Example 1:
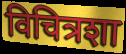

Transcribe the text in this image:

विचित्रशा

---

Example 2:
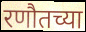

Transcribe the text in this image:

रणौतच्या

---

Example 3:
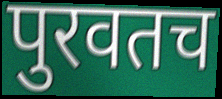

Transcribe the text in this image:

पुरवतच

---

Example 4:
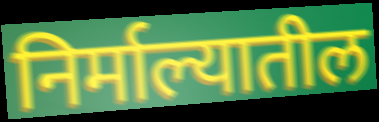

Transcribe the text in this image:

निर्माल्यातील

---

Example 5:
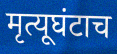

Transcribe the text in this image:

मृत्यूघंटाच